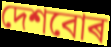
দেশবোৰ